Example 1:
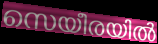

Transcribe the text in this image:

സെയീരയിൽ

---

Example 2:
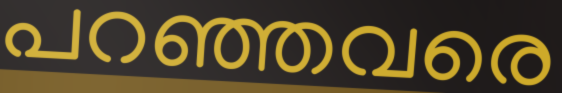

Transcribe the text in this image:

പറഞ്ഞവരെ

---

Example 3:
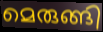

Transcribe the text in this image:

മെരുങ്ങി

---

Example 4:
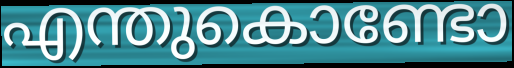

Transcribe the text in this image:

എന്തുകൊണ്ടോ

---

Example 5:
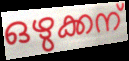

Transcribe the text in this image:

ഒഴുക്കന്